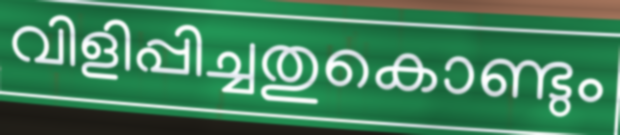
വിളിപ്പിച്ചതുകൊണ്ടും